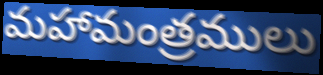
మహామంత్రములు